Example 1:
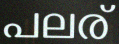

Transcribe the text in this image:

പലര്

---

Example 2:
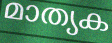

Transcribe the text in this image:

മാത്യക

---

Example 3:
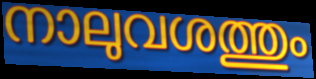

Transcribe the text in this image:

നാലുവശത്തും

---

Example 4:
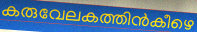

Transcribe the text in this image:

കരുവേലകത്തിൻകീഴെ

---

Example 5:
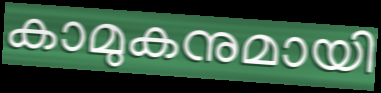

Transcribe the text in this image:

കാമുകനുമായി